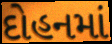
દોહનમાં